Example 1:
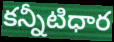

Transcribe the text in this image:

కన్నీటిధార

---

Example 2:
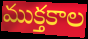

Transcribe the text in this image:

ముక్తకాల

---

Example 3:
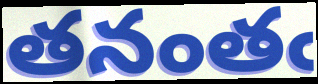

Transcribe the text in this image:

తనంతఁ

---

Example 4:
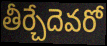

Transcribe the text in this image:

తీర్చేదెవరో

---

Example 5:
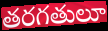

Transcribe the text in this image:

తరగతులూ